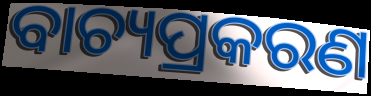
ବାଚ୍ୟପ୍ରକରଣ